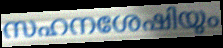
സഹനശേഷിയും